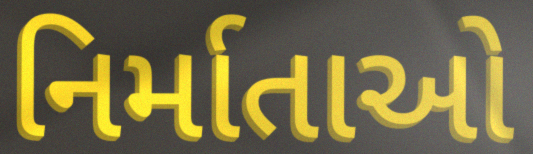
નિર્માતાઓ